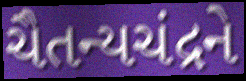
ચૈતન્યચંદ્રને